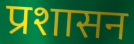
प्रशासन